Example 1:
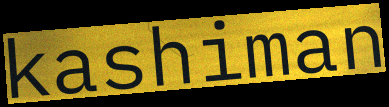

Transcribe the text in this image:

kashiman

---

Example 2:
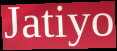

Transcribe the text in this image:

Jatiyo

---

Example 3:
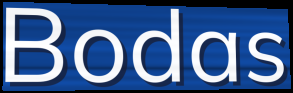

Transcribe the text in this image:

Bodas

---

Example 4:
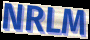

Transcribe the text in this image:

NRLM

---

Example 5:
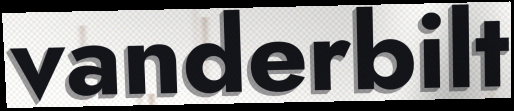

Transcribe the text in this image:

vanderbilt